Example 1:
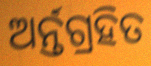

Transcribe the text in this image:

ଅର୍ନ୍ତଗ୍ରହିତ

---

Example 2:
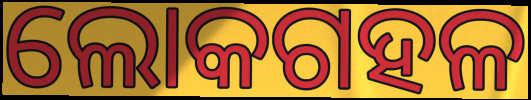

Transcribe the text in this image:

ଲୋକଗହଳ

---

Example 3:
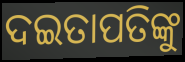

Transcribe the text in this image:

ଦଇତାପତିଙ୍କୁ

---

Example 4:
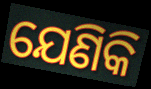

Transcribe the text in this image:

ଯେଣିକି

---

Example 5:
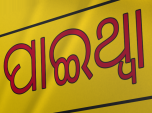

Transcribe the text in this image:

ପାଇଥ୍ବା